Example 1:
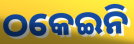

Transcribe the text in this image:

ଠକେଇନି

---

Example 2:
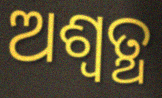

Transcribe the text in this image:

ଅଶ୍ଵତ୍ଥ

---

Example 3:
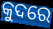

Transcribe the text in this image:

କୁଦରେ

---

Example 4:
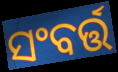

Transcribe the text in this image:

ସଂବର୍ତ୍ତ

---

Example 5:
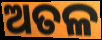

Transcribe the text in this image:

ଅତଳ